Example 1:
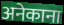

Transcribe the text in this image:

अनेकाना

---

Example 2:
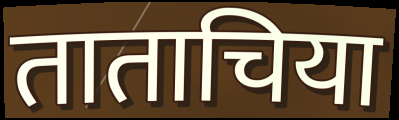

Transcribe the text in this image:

ताताचिया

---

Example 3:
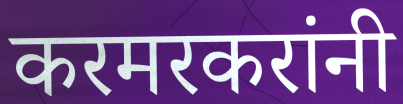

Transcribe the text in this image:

करमरकरांनी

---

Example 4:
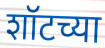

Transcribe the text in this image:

शॉटच्या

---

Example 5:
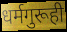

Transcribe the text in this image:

धर्मगुरूही